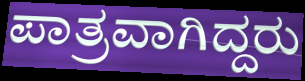
ಪಾತ್ರವಾಗಿದ್ದರು